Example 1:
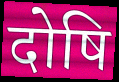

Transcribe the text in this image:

दोषि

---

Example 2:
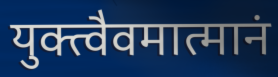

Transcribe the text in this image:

युक्त्वैवमात्मानं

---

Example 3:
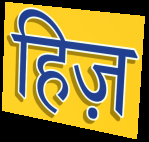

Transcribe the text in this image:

हिज़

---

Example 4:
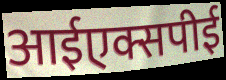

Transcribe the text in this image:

आईएक्सपीई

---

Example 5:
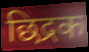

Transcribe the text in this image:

छिद्रक